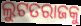
ଲୁଟତରାଜକୁ